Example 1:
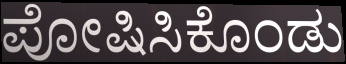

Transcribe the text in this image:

ಪೋಷಿಸಿಕೊಂಡು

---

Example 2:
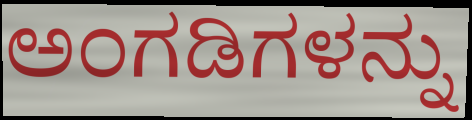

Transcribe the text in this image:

ಅಂಗಡಿಗಳನ್ನು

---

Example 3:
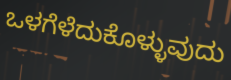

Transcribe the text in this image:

ಒಳಗೆಳೆದುಕೊಳ್ಳುವುದು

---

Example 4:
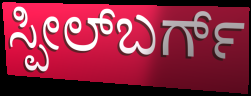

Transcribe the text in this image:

ಸ್ಪೀಲ್‌ಬರ್ಗ್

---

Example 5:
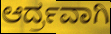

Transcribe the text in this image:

ಆರ್ದ್ರವಾಗಿ